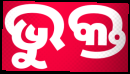
ଭୁକ୍ତ